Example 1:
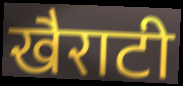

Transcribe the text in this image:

खैराटी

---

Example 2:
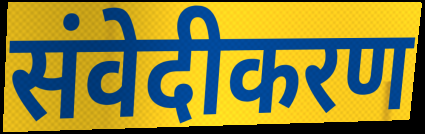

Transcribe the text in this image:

संवेदीकरण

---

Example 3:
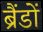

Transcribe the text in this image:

ब्रैंडों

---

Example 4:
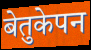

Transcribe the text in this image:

बेतुकेपन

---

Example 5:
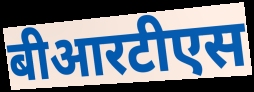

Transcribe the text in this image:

बीआरटीएस